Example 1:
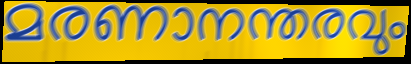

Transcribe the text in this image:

മരണാനന്തരവും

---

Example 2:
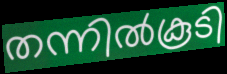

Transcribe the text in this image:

തന്നിൽകൂടി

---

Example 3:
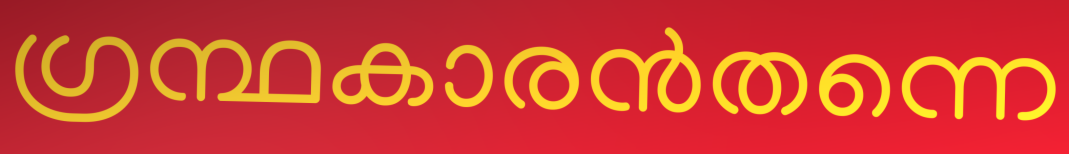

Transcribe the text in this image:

ഗ്രന്ഥകാരൻതന്നെ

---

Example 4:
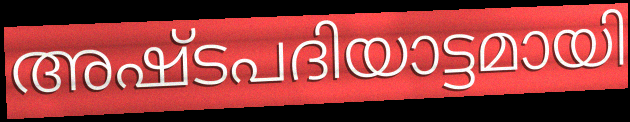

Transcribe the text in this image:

അഷ്ടപദിയാട്ടമായി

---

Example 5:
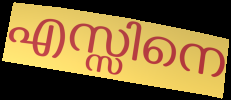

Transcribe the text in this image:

എസ്സിനെ